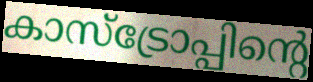
കാസ്ട്രോപ്പിന്റെ